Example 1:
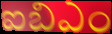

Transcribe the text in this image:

ఐబిఎం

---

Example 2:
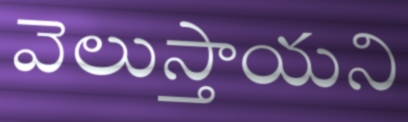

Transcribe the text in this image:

వెలుస్తాయని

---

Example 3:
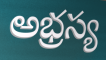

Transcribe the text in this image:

అభ్రస్య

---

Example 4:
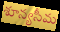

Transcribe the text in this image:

శూన్యసీమ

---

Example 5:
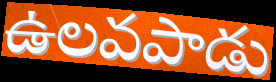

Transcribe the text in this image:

ఉలవపాడు